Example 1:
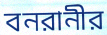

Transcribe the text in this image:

বনরানীর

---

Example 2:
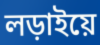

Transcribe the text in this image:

লড়াইয়ে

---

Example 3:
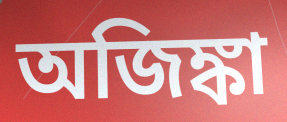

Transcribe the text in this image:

অজিঙ্কা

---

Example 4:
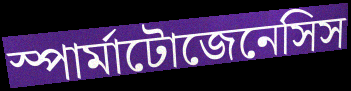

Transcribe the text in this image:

স্পার্মাটোজেনেসিস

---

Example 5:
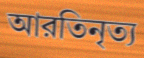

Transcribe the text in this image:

আরতিনৃত্য